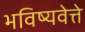
भविष्यवेत्ते